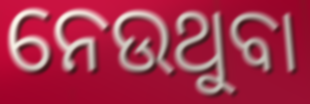
ନେଉଥୁବା